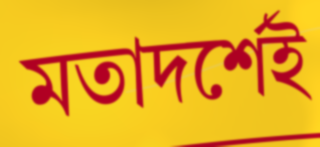
মতাদর্শেই